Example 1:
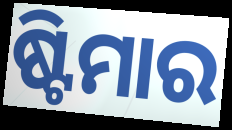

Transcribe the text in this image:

ଷ୍ଟିମାର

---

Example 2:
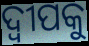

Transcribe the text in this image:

ଦ୍ୱୀପକୁ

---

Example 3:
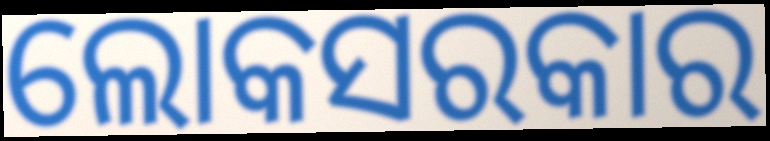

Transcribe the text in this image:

ଲୋକସରକାର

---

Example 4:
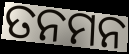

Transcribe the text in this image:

ତନମନ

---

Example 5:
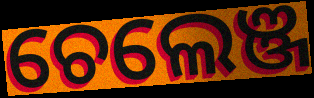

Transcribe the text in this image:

ଚେଲେଞ୍ଜ